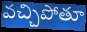
వచ్చిపోతూ